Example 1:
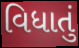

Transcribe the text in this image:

વિધાતું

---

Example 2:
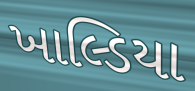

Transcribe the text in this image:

ખાલ્ડિયા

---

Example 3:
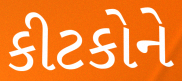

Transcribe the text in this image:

કીટકોને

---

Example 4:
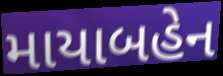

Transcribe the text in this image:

માયાબહેન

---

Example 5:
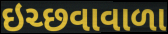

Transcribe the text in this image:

ઇચ્છવાવાળા